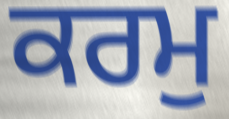
ਕਰਮੁ